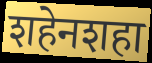
शहेनशहा